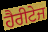
ਹੈਰੀਟੇਜ